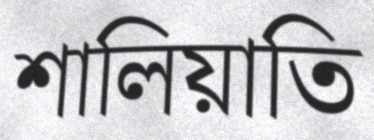
শালিয়াতি